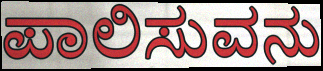
ಪಾಲಿಸುವನು